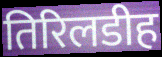
तिरिलडीह